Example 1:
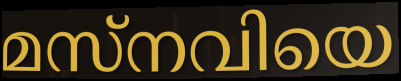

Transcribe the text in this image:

മസ്നവിയെ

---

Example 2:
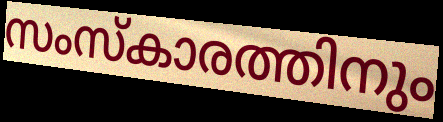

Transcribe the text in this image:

സംസ്കാരത്തിനും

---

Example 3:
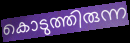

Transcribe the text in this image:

കൊടുത്തിരുന്ന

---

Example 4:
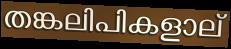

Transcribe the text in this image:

തങ്കലിപികളാല്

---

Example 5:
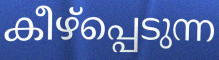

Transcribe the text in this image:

കീഴ്പ്പെടുന്ന